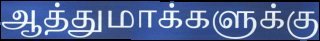
ஆத்துமாக்களுக்கு